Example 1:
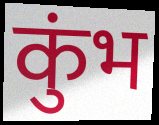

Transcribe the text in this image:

कुंभ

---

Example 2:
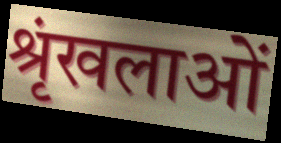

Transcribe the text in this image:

श्रृंखलाओं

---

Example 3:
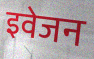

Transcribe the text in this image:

इवेजन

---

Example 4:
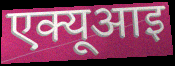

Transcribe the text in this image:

एक्यूआइ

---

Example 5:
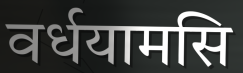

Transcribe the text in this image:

वर्धयामसि